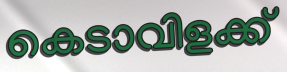
കെടാവിളക്ക്